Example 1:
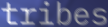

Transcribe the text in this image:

tribes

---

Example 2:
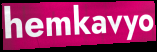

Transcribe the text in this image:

hemkavyo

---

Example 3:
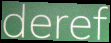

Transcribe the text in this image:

deref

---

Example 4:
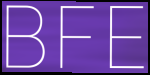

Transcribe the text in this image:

BFE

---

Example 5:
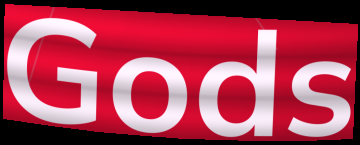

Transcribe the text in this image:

Gods